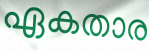
ഏകതാര